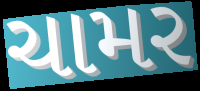
ચામર